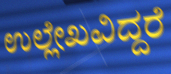
ಉಲ್ಲೇಖವಿದ್ದರೆ